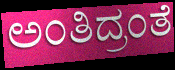
ಅಂತಿದ್ರಂತೆ